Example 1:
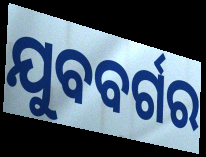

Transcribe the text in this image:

ଯୁବବର୍ଗର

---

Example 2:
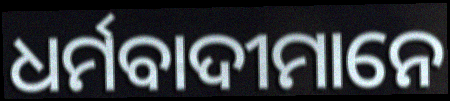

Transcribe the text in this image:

ଧର୍ମବାଦୀମାନେ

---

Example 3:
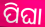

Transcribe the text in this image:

ପିଘା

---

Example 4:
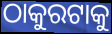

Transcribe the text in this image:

ଠାକୁରଟାକୁ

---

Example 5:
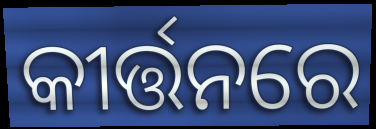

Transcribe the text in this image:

କୀର୍ତ୍ତନରେ